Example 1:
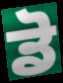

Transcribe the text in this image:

ਡੋ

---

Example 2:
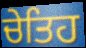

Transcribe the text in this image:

ਚੇਤਿਹ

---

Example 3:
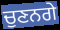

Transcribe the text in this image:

ਚੁਣਨਗੇ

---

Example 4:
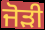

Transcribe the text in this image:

ਜੋੜੀ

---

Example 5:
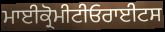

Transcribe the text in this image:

ਮਾਈਕ੍ਰੋਮੀਟੀਓਰਾਈਟਸ